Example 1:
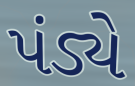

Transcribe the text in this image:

પંડ્યે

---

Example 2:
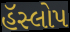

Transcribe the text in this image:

હૅસ્લોપ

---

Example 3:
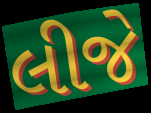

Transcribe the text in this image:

લીજે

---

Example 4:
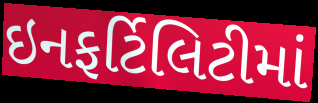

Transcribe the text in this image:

ઇનફર્ટિલિટીમાં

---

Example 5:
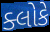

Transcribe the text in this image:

ક્લોકે